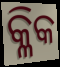
କ୍ଳିକ